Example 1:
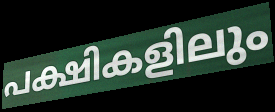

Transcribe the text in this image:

പക്ഷികളിലും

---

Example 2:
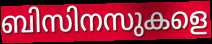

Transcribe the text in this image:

ബിസിനസുകളെ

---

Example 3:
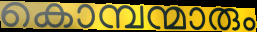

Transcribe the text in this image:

കൊമ്പന്മാരും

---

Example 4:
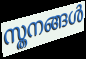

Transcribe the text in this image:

സ്തനങ്ങൾ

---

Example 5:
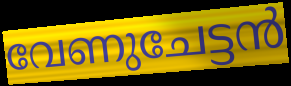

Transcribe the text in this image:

വേണുചേട്ടൻ